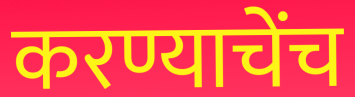
करण्याचेंच